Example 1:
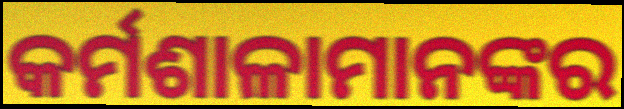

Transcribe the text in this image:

କର୍ମଶାଳାମାନଙ୍କର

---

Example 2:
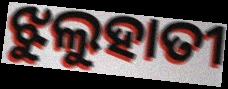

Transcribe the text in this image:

ଝୁଲୁହାତୀ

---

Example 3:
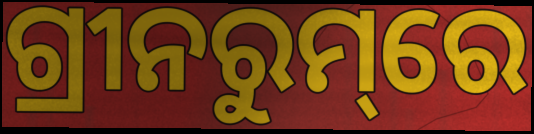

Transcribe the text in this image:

ଗ୍ରୀନରୁମ୍‌ରେ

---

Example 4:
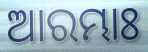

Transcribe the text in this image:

ଆରମ୍ଭାଃ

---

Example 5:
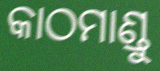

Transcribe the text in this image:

କାଠମାଣ୍ଡୁ